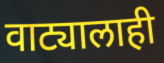
वाट्यालाही